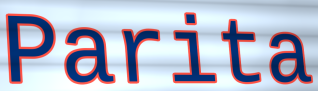
Parita